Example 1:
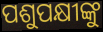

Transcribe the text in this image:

ପଶୁପକ୍ଷୀଙ୍କୁ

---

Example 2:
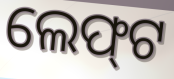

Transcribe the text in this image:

ଲେଫ୍‌ଟ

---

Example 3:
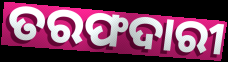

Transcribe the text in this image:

ତରଫଦାରୀ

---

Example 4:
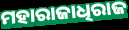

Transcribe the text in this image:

ମହାରାଜାଧିରାଜ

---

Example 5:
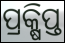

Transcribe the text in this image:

ପ୍ରକ୍ଷିପ୍ତ